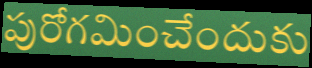
పురోగమించేందుకు